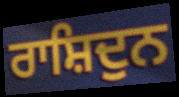
ਰਾਸ਼ਿਦੁਨ